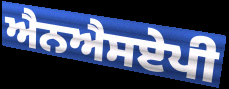
ਐਨਐਸਏਪੀ